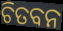
ଚିତବନ